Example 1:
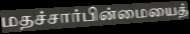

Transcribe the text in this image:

மதச்சார்பின்மையைத்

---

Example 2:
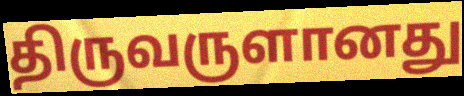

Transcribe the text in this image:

திருவருளானது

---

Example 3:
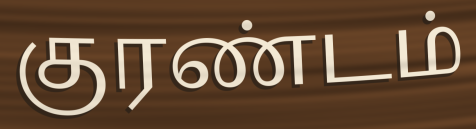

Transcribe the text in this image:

குரண்டம்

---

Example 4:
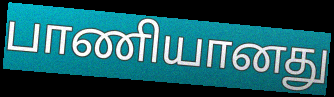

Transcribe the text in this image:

பாணியானது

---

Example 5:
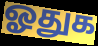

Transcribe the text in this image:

ஓதுக